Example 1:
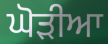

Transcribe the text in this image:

ਘੋੜੀਆ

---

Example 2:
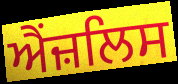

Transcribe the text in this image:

ਐਂਜ਼ਲਿਸ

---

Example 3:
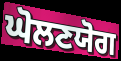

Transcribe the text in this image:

ਘੋਲਣਯੋਗ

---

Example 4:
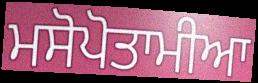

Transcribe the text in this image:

ਮਸੋਪੋਤਾਮੀਆ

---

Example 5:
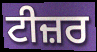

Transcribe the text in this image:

ਟੀਜ਼ਰ